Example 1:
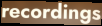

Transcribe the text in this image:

recordings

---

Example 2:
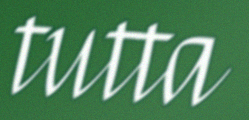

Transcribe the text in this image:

tutta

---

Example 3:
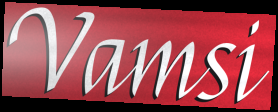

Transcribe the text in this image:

Vamsi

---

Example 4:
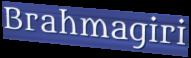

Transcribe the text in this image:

Brahmagiri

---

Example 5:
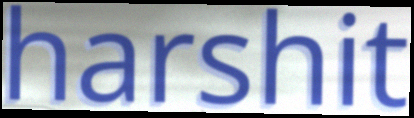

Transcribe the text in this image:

harshit